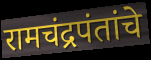
रामचंद्रपंतांचे